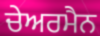
ਚੇਅਰਮੈਨ